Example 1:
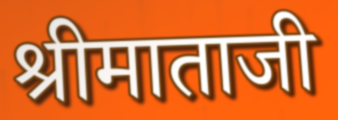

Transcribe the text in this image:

श्रीमाताजी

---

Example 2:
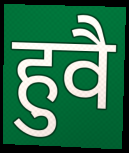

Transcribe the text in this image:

हुवै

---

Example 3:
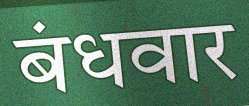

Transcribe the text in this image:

बंधवार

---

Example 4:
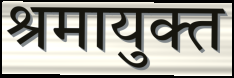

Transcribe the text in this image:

श्रमायुक्त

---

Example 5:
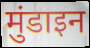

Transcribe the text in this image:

मुंडाइन